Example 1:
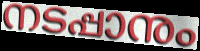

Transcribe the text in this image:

നടപ്പാനും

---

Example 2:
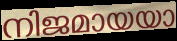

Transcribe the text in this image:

നിജമായയാ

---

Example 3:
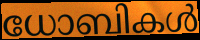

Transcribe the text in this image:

ധോബികൾ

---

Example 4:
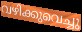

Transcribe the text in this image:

വഴിക്കുവെച്ചു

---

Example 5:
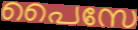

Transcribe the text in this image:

പൈസേ